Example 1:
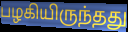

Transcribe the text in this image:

பழகியிருந்தது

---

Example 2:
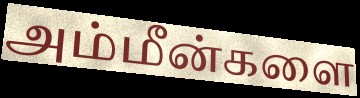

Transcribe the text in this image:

அம்மீன்களை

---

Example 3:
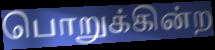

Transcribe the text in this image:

பொறுக்கின்ற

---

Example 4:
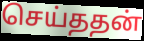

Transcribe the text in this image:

செய்ததன்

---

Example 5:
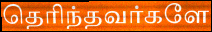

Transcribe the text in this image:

தெரிந்தவர்களே